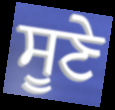
ਸੂਣੇ